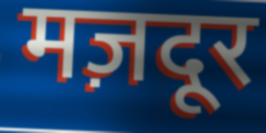
मज़दूर